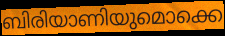
ബിരിയാണിയുമൊക്കെ